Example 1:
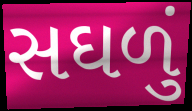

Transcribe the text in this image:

સઘળું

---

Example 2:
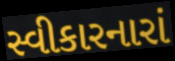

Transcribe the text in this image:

સ્વીકારનારાં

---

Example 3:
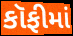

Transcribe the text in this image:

કૉફીમાં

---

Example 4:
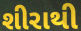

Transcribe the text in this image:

શીરાથી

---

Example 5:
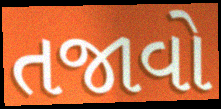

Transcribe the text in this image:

તજાવો